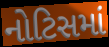
નોટિસમાં